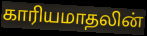
காரியமாதலின்